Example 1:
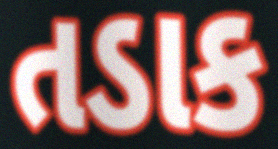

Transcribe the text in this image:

તડાક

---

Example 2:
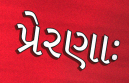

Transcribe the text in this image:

પ્રેરણાઃ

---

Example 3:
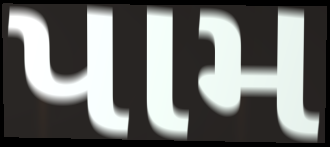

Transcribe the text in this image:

પામ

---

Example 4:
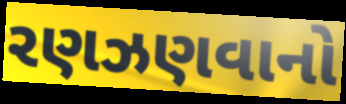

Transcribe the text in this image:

રણઝણવાનો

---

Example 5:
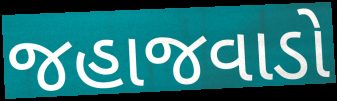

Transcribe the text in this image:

જહાજવાડો